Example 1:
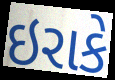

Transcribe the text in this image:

ઇરાકે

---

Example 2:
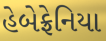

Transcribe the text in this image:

હેબેફ્રેનિયા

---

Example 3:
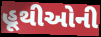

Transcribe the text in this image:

હૂથીઓની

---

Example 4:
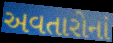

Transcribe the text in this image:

અવતારોનાં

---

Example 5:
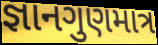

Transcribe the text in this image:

જ્ઞાનગુણમાત્ર